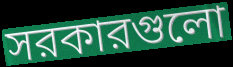
সরকারগুলো